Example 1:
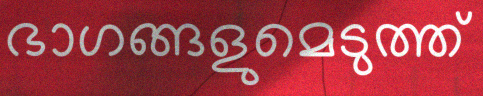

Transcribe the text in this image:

ഭാഗങ്ങളുമെടുത്ത്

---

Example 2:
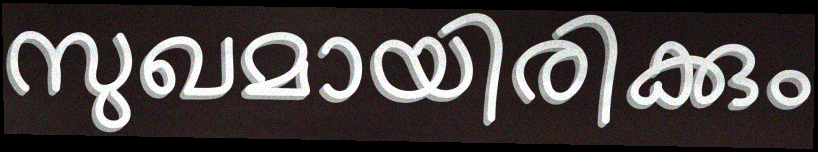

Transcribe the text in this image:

സുഖമായിരിക്കും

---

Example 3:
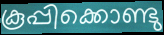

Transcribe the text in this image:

കൂപ്പിക്കൊണ്ടു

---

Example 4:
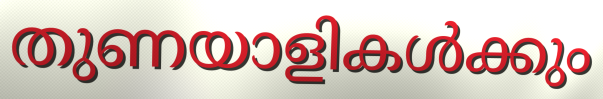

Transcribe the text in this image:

തുണയാളികൾക്കും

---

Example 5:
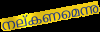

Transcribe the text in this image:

നല്‌കണമെന്നു